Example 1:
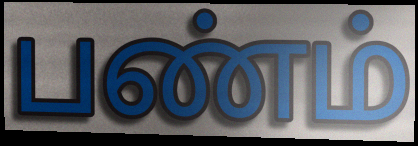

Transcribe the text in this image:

பண்ம்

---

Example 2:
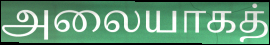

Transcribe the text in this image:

அலையாகத்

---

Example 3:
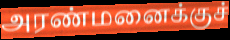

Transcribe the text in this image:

அரண்மனைக்குச்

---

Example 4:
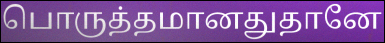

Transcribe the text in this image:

பொருத்தமானதுதானே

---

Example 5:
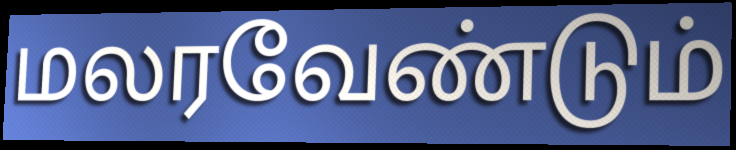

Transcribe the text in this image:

மலரவேண்டும்